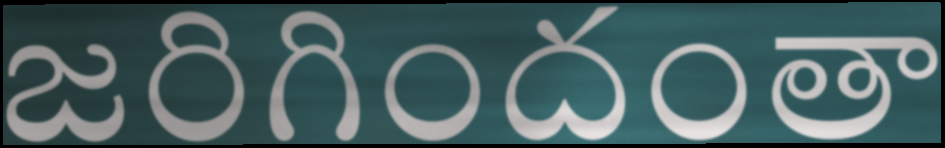
జరిగిందంతా